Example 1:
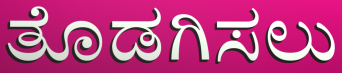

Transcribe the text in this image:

ತೊಡಗಿಸಲು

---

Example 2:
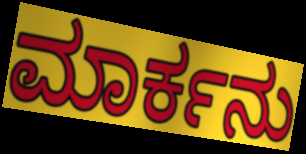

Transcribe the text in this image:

ಮಾರ್ಕನು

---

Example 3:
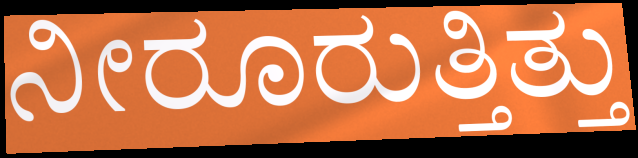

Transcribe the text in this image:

ನೀರೂರುತ್ತಿತ್ತು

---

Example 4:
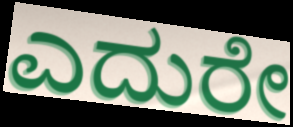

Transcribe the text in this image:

ಎದುರೇ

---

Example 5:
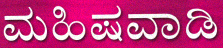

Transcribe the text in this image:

ಮಹಿಷವಾಡಿ